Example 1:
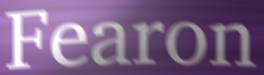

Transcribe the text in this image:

Fearon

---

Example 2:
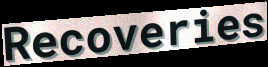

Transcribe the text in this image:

Recoveries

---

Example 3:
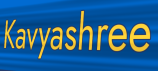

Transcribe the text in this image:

Kavyashree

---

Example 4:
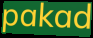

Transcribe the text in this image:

pakad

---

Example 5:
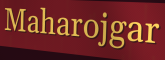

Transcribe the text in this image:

Maharojgar